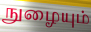
நுழையும்